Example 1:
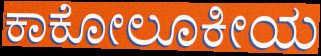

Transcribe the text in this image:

ಕಾಕೋಲೂಕೀಯ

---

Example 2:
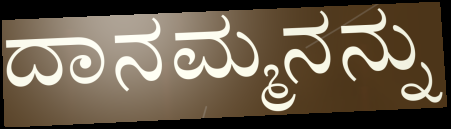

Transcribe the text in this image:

ದಾನಮ್ಮನನ್ನು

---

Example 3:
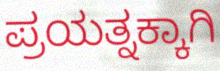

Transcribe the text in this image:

ಪ್ರಯತ್ನಕ್ಕಾಗಿ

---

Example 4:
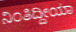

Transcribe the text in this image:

ನಿಂತಿದ್ದೀಯಾ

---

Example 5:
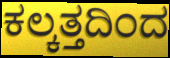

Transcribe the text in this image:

ಕಲ್ಕತ್ತದಿಂದ